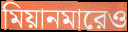
মিয়ানমারেও